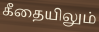
கீதையிலும்